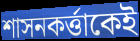
শাসনকর্ত্তাকেই